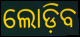
ଲୋଡ଼ିବ